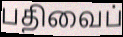
பதிவைப்